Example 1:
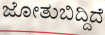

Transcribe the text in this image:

ಜೋತುಬಿದ್ದಿದೆ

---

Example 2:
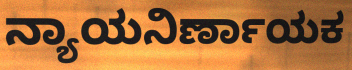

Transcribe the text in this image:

ನ್ಯಾಯನಿರ್ಣಾಯಕ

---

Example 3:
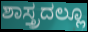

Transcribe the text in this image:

ಶಾಸ್ತ್ರದಲ್ಲೂ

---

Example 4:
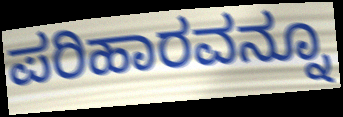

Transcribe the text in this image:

ಪರಿಹಾರವನ್ನೂ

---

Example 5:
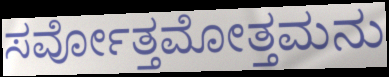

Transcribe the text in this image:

ಸರ್ವೋತ್ತಮೋತ್ತಮನು